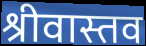
श्रीवास्तव